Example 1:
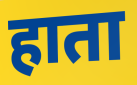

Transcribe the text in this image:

हाता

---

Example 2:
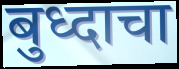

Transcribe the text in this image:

बुध्दाचा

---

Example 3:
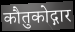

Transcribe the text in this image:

कौतुकोद्गार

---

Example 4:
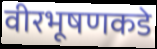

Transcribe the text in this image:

वीरभूषणकडे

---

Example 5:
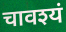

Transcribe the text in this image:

चावश्यं